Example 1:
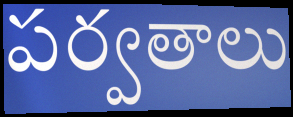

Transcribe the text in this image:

పర్వతాలు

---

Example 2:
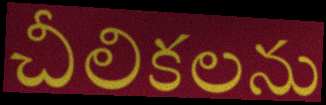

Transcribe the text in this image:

చీలికలను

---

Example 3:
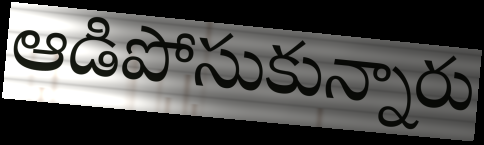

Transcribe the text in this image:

ఆడిపోసుకున్నారు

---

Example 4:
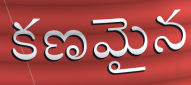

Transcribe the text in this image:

కణమైన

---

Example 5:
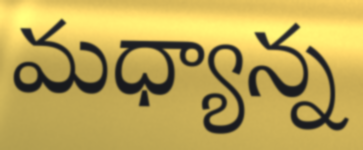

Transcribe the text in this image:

మధ్యాన్న